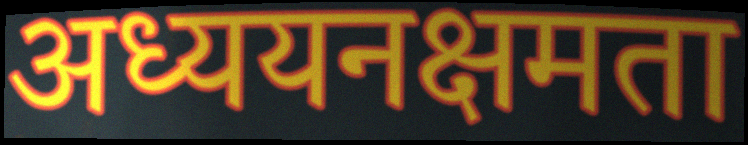
अध्ययनक्षमता